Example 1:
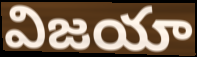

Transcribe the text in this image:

విజయా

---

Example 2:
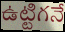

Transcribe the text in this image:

ఉట్టిగనే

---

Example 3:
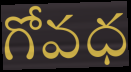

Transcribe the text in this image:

గోవధ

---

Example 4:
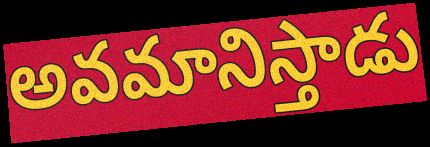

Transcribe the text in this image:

అవమానిస్తాడు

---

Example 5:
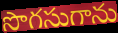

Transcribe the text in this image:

సొగసుగాను